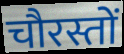
चौरस्तों